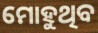
ମୋହୁଥିବ